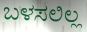
ಬಳಸಲಿಲ್ಲ